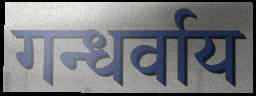
गन्धर्वाय